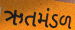
ઋતમંડળ